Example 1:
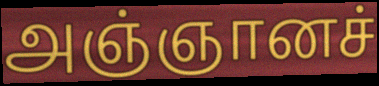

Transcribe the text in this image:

அஞ்ஞானச்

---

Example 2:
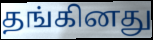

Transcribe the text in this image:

தங்கினது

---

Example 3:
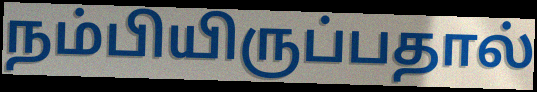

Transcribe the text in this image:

நம்பியிருப்பதால்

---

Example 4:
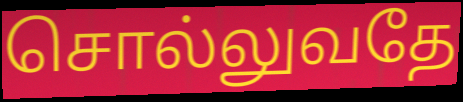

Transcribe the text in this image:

சொல்லுவதே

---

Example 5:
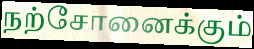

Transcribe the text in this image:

நற்சோனைக்கும்